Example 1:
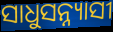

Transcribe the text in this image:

ସାଧୁସନ୍ନ୍ୟାସୀ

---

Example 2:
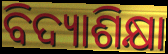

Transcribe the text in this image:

ବିଦ୍ୟାଶିକ୍ଷା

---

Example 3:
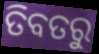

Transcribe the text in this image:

ତିବତରୁ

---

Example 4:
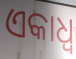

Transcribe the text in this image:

ଏକାଧ୍ଵ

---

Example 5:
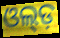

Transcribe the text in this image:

ଓଲ୍ଡ଼